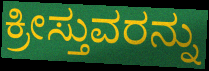
ಕ್ರೀಸ್ತುವರನ್ನು